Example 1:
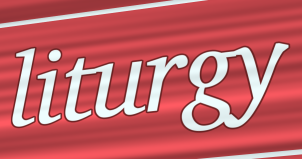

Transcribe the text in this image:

liturgy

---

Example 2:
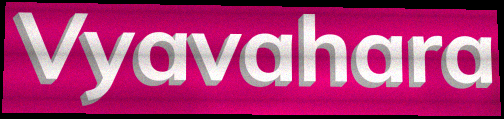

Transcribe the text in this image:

Vyavahara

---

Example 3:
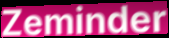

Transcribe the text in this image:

Zeminder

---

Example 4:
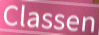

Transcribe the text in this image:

Classen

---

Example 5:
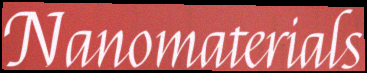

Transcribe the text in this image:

Nanomaterials